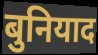
बुनियाद